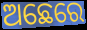
ଅଛେରେ